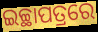
ଇଚ୍ଛାପତ୍ରରେ